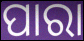
ପାରା